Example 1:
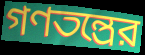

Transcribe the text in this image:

গণতন্ত্রের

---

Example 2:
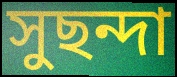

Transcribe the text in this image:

সুছন্দা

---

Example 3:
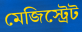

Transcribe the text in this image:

মেজিস্ট্রেট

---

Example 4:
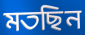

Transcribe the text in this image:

মতছিন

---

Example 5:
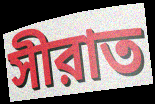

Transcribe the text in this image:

সীরাত